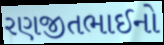
રણજીતભાઈનો